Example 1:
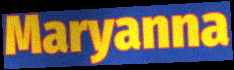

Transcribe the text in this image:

Maryanna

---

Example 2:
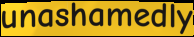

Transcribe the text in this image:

unashamedly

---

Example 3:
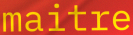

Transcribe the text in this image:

maitre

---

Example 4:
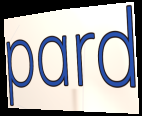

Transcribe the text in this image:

pard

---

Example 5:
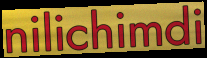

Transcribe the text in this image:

nilichimdi